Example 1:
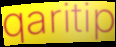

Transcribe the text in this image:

qaritip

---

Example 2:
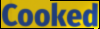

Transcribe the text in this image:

Cooked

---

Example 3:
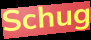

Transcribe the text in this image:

Schug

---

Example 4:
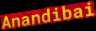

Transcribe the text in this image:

Anandibai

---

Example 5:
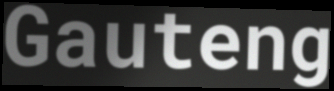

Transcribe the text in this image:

Gauteng